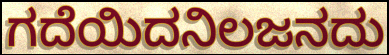
ಗದೆಯಿದನಿಲಜನದು